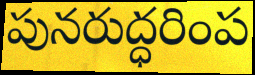
పునరుద్ధరింప